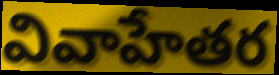
వివాహేతర